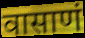
वासाणं